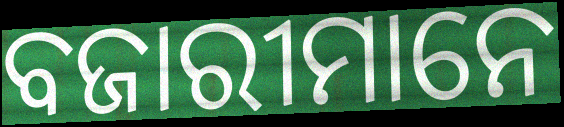
ବଜାରୀମାନେ